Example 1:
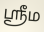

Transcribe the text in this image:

ஶ்ரீம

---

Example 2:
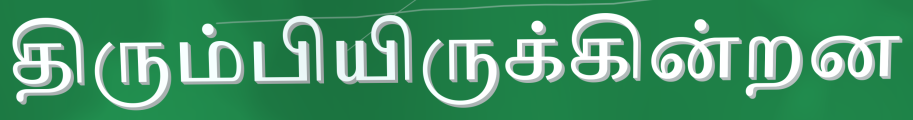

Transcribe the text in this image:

திரும்பியிருக்கின்றன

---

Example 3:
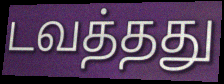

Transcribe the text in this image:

டவத்தது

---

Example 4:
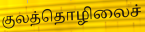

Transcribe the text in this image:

குலத்தொழிலைச்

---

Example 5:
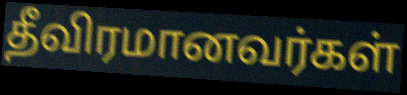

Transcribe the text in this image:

தீவிரமானவர்கள்